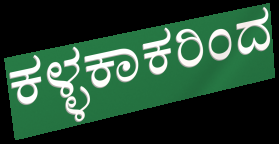
ಕಳ್ಳಕಾಕರಿಂದ